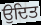
ਉਦਿਤ